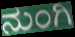
ನುಂಗಿ